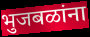
भुजबळांना